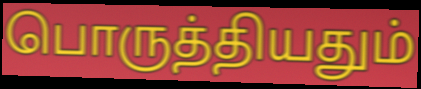
பொருத்தியதும்